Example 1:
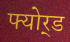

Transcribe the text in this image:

फ्योर्ड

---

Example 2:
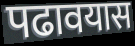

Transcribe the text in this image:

पढावयास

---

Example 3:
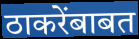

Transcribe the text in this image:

ठाकरेंबाबत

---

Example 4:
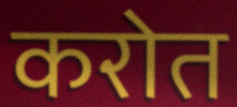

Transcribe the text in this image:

करोत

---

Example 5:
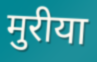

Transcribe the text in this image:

मुरीया